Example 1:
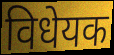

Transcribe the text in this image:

विधेयक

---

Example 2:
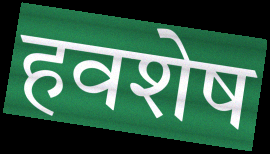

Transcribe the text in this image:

हवशेष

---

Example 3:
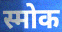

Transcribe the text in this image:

स्मोक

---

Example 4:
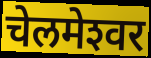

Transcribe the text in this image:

चेलमेश्‍वर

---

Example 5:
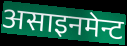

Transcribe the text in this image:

असाइनमेन्ट